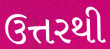
ઉત્તરથી